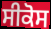
ਸੀਕੋਸ